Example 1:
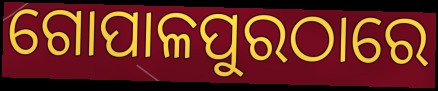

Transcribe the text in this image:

ଗୋପାଳପୁରଠାରେ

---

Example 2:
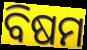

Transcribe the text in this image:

ବିଷମ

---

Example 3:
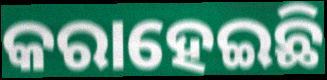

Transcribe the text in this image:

କରାହେଇଛି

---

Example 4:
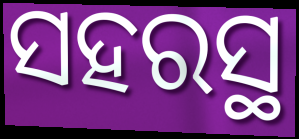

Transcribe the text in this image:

ସହରସ୍ଥ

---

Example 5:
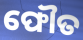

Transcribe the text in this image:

ଫୌତ